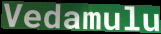
Vedamulu